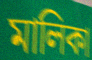
মালিকা